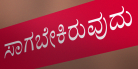
ಸಾಗಬೇಕಿರುವುದು